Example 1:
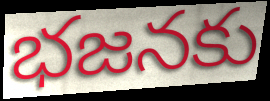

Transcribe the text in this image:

భజనకు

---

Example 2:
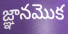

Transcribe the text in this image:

జ్ఞానమొక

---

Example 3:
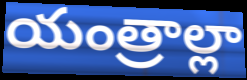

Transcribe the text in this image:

యంత్రాల్లా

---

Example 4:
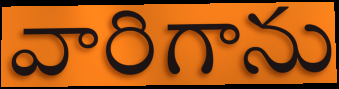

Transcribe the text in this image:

వారిగాను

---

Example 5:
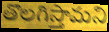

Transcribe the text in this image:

తొలగిస్తామని